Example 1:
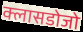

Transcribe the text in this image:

क्लासडोजो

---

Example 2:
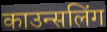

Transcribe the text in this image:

काउन्सलिंग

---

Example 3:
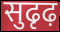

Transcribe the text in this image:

सुढृढ़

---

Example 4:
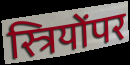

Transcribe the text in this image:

स्त्रियोंपर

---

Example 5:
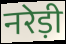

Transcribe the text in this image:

नरेड़ी